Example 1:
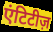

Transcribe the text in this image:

एंटिटीज़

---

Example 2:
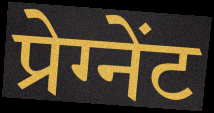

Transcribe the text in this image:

प्रेग्‍नेंट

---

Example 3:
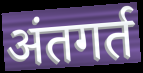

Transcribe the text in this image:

अंतगर्त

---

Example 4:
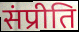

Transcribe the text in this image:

संप्रीति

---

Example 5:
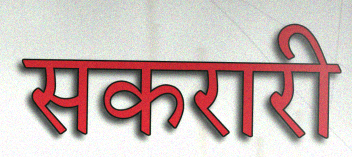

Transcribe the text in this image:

सकरारी